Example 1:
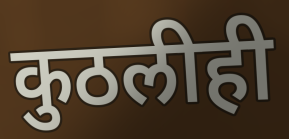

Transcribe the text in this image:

कुठलीही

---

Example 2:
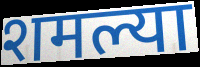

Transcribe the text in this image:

शमल्या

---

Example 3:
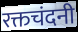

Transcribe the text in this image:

रक्तचंदनी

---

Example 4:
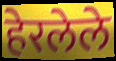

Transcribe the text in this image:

हेरलेले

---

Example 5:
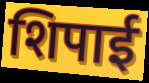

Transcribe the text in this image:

शिपाई